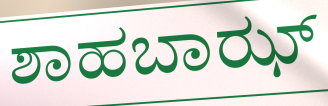
ಶಾಹಬಾಝ್